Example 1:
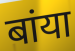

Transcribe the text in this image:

बांया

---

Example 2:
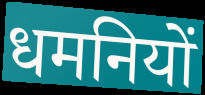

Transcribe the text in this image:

धमनियों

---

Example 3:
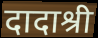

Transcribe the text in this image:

दादाश्री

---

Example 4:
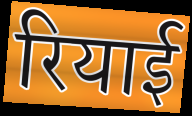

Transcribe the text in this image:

रियाई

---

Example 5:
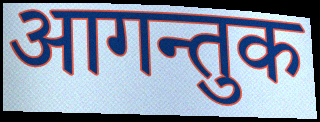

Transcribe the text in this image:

आगन्तुक